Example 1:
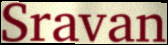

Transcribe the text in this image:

Sravan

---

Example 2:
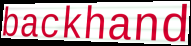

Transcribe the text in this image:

backhand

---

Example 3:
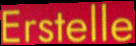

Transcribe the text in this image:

Erstelle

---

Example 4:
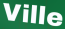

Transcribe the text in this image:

Ville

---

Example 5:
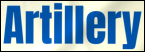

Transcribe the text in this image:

Artillery